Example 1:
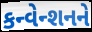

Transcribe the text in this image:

કન્વેન્શનને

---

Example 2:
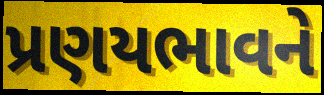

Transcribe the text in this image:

પ્રણયભાવને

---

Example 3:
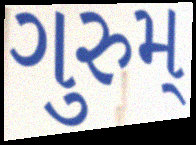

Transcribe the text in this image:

ગુરુમ્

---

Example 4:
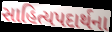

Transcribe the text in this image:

સાહિત્યપદાર્થના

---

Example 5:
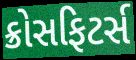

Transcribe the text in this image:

ક્રોસફિટર્સ